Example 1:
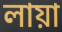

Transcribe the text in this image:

লায়া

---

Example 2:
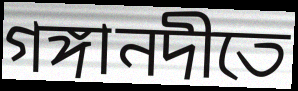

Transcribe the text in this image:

গঙ্গানদীতে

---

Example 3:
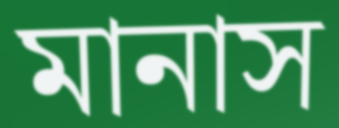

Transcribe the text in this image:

মানাস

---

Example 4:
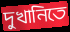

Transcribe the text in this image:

দুখানিতে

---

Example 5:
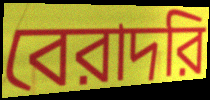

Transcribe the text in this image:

বেরাদরি